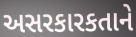
અસરકારકતાને